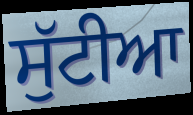
ਸੁੱਟੀਆ